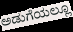
ಅಡುಗೆಯಲ್ಲೂ